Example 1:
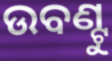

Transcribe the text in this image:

ଉବଣ୍ଟୁ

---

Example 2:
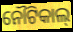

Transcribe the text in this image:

ନୌଟିକାଲ୍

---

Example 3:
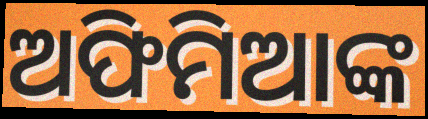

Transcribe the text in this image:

ଅଫିମିଆଙ୍କ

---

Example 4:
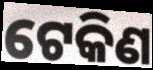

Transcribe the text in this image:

ଟେକିଣ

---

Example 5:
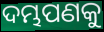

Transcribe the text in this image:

ଦମ୍ଭପଣକୁ